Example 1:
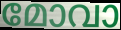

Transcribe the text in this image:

മോവാ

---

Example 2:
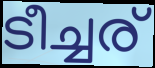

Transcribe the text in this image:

ടീച്ചര്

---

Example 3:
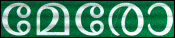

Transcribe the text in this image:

മേരോ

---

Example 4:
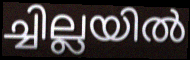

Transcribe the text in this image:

ച്ചില്ലയിൽ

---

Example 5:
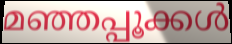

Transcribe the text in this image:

മഞ്ഞപ്പൂക്കൾ